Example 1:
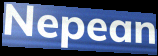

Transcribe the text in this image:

Nepean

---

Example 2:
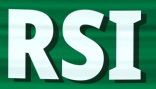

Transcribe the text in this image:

RSI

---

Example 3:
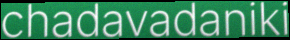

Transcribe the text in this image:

chadavadaniki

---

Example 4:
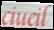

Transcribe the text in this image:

ciueil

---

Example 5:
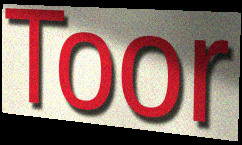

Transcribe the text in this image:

Toor